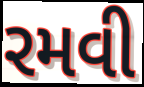
રમવી